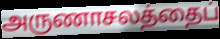
அருணாசலத்தைப்